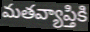
మతవ్యాప్తికి